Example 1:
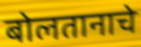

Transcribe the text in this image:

बोलतानाचे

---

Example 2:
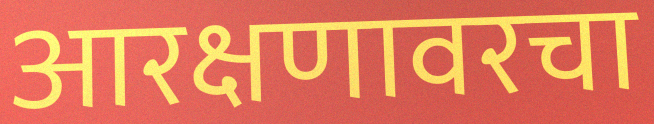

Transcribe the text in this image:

आरक्षणावरचा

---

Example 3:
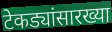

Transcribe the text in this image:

टेकड्यांसारख्या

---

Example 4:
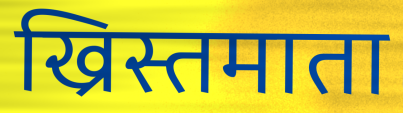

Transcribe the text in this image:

ख्रिस्तमाता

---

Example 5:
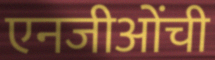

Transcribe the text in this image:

एनजीओंची